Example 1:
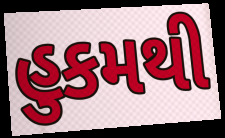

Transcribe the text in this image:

હુકમથી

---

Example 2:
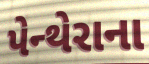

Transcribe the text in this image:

પેન્થેરાના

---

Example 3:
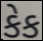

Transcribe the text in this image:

કેક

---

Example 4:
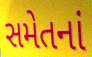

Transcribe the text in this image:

સમેતનાં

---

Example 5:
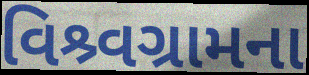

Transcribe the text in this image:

વિશ્ર્વગ્રામના